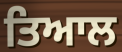
ਤਿਆਲ